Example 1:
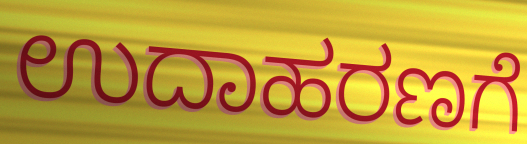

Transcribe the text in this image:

ಉದಾಹರಣಗೆ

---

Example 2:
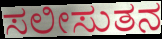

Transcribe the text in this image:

ಸಲೀಸುತನ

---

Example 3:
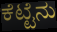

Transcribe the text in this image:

ಕೆಟ್ಟೆನು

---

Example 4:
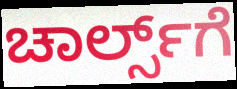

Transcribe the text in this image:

ಚಾರ್ಲ್ಸ್‌ಗೆ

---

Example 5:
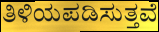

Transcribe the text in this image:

ತಿಳಿಯಪಡಿಸುತ್ತವೆ